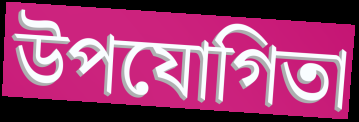
উপযোগিতা